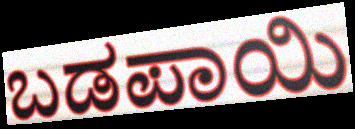
ಬಡಪಾಯಿ